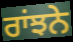
ਰਾਂਝਨੇ